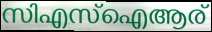
സിഎസ്ഐആര്